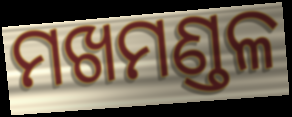
ମଖମଣ୍ଡଳ